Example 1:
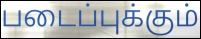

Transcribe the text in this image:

படைப்புக்கும்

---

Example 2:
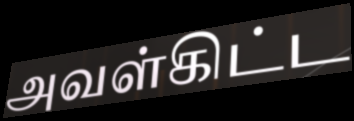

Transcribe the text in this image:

அவள்கிட்ட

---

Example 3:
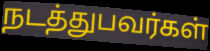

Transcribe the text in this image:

நடத்துபவர்கள்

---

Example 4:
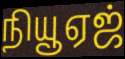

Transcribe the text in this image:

நியூஏஜ்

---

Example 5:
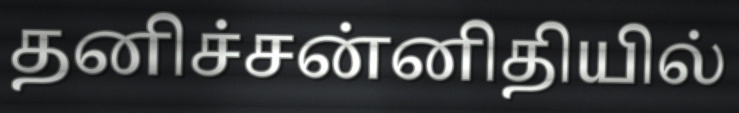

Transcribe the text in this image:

தனிச்சன்னிதியில்